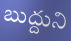
బుద్దుని